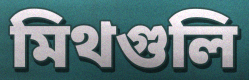
মিথগুলি